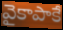
వైకాపాకే